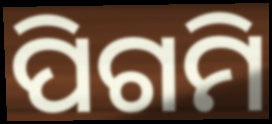
ପିଗମି